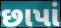
છાપાં